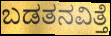
ಬಡತನವಿತ್ತೆ